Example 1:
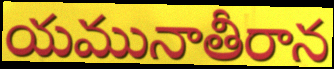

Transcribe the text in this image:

యమునాతీరాన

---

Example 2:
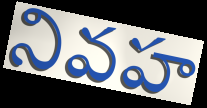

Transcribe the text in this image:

నివహ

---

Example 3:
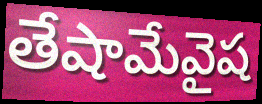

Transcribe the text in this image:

తేషామేవైష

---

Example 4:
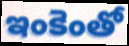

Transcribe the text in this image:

ఇంకెంతో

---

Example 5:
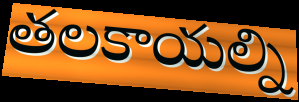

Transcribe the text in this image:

తలకాయల్ని